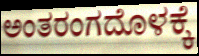
ಅಂತರಂಗದೊಳಕ್ಕೆ